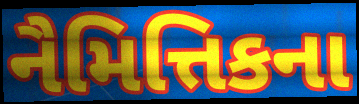
નૈમિત્તિકના